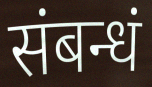
संबन्धं